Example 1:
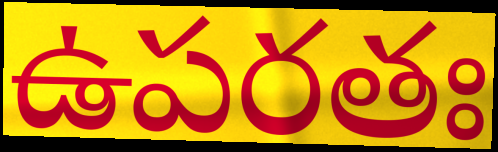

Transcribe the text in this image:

ఉపరతః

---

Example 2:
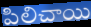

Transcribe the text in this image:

పిలిచాయి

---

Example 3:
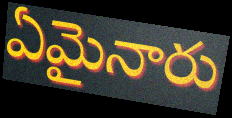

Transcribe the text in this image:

ఏమైనారు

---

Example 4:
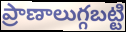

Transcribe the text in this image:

ప్రాణాలుగ్గబట్టి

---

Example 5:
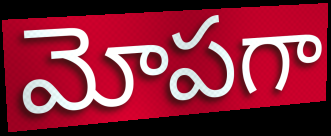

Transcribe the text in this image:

మోపగా